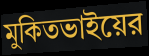
মুকিতভাইয়ের